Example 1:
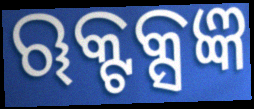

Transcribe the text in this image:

ୠକ୍ଟକ୍ସଜ୍ଞ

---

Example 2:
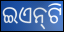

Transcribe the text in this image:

ଇଏନ୍‌ଟି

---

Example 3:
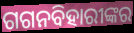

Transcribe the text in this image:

ଗଗନବିହାରୀଙ୍କର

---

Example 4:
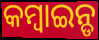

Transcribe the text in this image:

କମ୍ବାଇନ୍ଡ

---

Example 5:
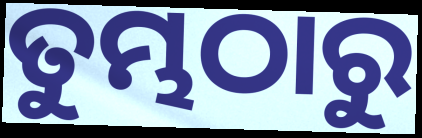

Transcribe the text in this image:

ତୁମ୍ଭଠାରୁ